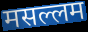
मसल्लम